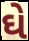
ઘે